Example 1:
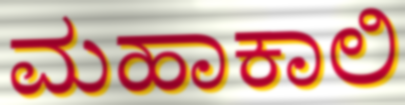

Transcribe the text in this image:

ಮಹಾಕಾಲಿ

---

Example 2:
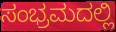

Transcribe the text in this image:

ಸಂಭ್ರಮದಲ್ಲಿ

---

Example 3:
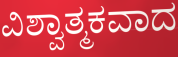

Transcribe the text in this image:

ವಿಶ್ವಾತ್ಮಕವಾದ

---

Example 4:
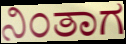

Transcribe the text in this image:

ನಿಂತಾಗ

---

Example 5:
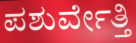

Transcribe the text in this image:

ಪಶುರ್ವೇತ್ತಿ